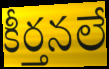
కీర్తనలే